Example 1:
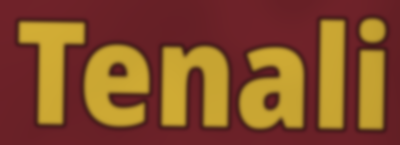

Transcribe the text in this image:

Tenali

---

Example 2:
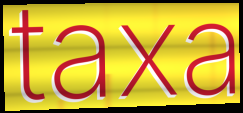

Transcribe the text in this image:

taxa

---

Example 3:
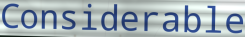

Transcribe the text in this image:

Considerable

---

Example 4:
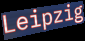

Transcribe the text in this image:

Leipzig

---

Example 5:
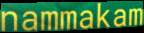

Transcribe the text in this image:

nammakam